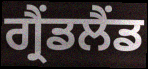
ਗ੍ਰੈਂਡਲੈਂਡ